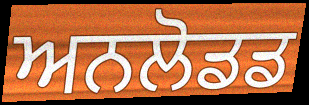
ਅਨਲੋਡਡ